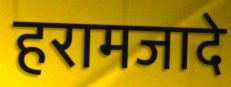
हरामजादे